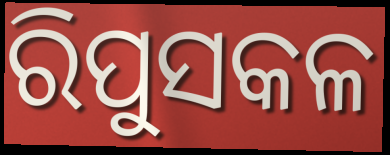
ରିପୁସକଳ